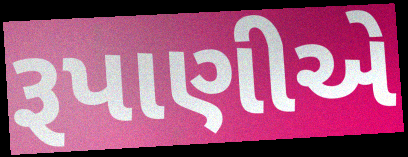
રૂપાણીએ